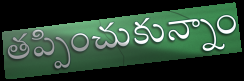
తప్పించుకున్నాం